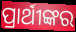
ପ୍ରାର୍ଥୀଙ୍କର